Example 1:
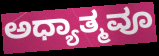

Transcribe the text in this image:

ಅಧ್ಯಾತ್ಮವೂ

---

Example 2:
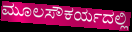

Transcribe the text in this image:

ಮೂಲಸೌಕರ್ಯದಲ್ಲಿ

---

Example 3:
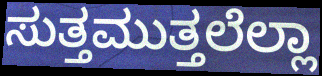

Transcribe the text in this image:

ಸುತ್ತಮುತ್ತಲೆಲ್ಲಾ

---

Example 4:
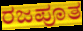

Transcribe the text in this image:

ರಜಪೂತ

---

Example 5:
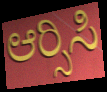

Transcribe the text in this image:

ಆರ್‍ಸಿಸಿ